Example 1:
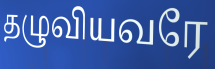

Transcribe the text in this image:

தழுவியவரே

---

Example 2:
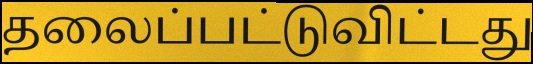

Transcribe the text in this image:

தலைப்பட்டுவிட்டது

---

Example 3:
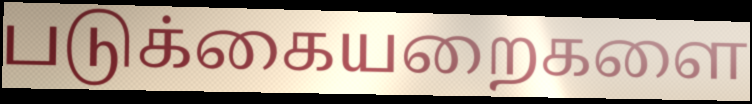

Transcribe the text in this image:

படுக்கையறைகளை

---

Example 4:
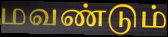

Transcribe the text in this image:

மவண்டும்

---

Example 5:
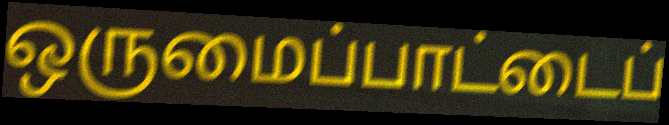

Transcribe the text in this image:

ஒருமைப்பாட்டைப்